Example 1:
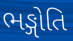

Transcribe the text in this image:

ભઙ્ગોતિ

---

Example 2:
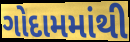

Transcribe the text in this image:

ગોદામમાંથી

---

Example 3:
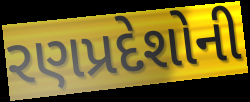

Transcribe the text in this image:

રણપ્રદેશોની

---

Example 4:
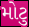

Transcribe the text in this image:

મોટુ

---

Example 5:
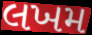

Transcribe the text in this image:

લખમ